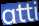
atti